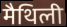
मैथिली